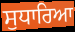
ਸੁਧਾਰਿਆ